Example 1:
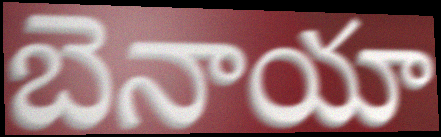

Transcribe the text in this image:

బెనాయా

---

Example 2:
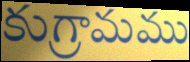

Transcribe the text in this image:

కుగ్రామము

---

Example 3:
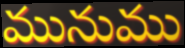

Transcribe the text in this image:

మునుము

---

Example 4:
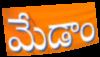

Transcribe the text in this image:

మేడాం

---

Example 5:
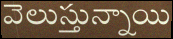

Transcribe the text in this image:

వెలుస్తున్నాయి